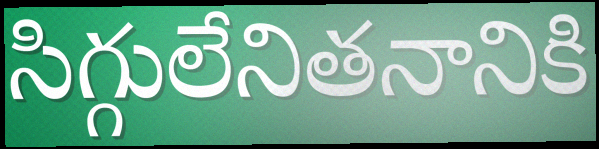
సిగ్గులేనితనానికి